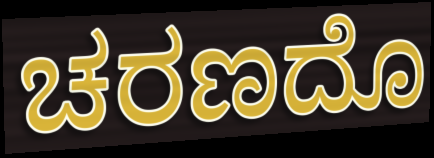
ಚರಣದೊ